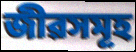
জীৱসমূহ